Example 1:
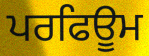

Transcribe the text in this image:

ਪਰਫਿਊਮ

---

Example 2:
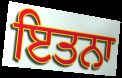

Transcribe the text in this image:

ਇਤਨਾ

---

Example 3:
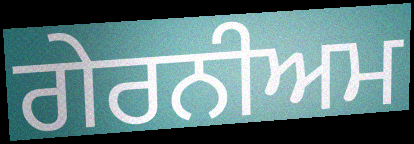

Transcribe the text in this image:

ਗੇਰਨੀਅਮ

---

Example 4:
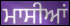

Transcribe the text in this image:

ਮਾਸੀਆਂ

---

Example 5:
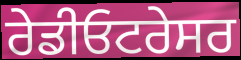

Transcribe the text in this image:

ਰੇਡੀਓਟਰੇਸਰ